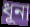
ধূনা